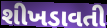
શીખડાવતી